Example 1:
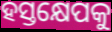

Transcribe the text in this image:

ହସ୍ତକ୍ଷେପକୁ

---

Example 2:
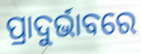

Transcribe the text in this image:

ପ୍ରାଦୁର୍ଭାବରେ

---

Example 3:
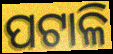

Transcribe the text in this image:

ପଟାଳି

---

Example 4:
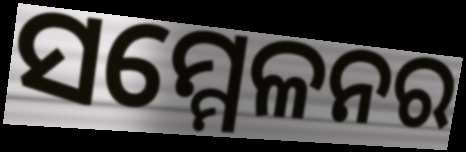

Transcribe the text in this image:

ସମ୍ମେଳନର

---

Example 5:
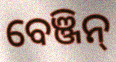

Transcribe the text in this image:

ବେଞ୍ଜିନ୍